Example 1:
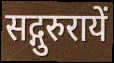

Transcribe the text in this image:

सद्गुरुरायें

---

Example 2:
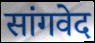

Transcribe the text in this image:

सांगवेद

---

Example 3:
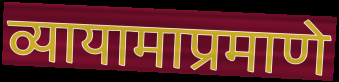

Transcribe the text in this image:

व्यायामाप्रमाणे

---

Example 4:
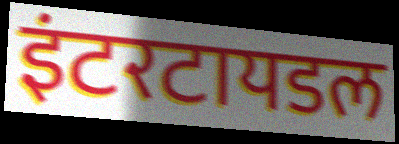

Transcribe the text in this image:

इंटरटायडल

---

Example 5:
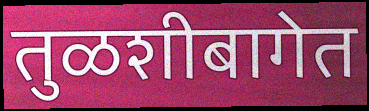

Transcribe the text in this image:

तुळशीबागेत